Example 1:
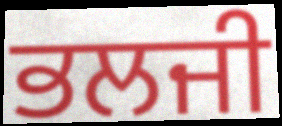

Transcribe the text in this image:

ਭਲਜੀ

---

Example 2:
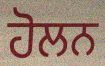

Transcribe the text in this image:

ਹੋਲਨ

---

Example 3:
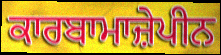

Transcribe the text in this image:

ਕਾਰਬਾਮਾਜ਼ੇਪੀਨ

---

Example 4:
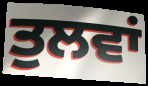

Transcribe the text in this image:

ਤੁਲਵਾਂ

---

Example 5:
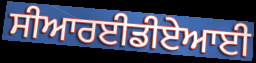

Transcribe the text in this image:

ਸੀਆਰਈਡੀਏਆਈ